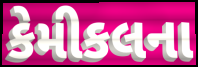
કેમીકલના